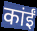
कांईं